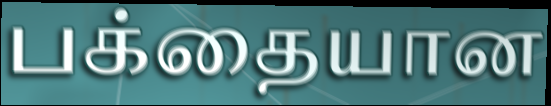
பக்தையான